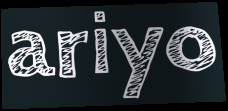
ariyo